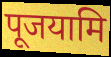
पूजयामि